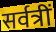
सर्वत्रीं